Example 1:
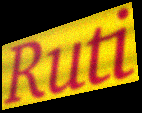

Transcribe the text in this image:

Ruti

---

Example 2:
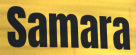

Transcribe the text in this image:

Samara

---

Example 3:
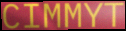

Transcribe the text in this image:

CIMMYT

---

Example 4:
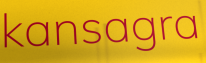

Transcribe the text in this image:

kansagra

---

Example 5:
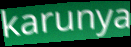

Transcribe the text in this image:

karunya